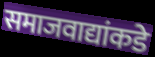
समाजवाद्यांकडे